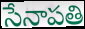
సేనాపతి